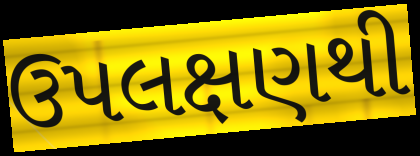
ઉપલક્ષણથી